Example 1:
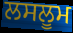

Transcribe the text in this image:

ਲਸਲੂਮ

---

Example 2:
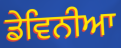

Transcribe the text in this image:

ਡੇਵਿਨੀਆ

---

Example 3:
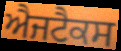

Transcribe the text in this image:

ਐਜਟੈਕਸ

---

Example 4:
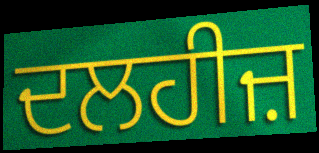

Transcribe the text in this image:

ਦਲਹੀਜ਼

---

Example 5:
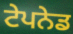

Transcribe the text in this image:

ਟੇਪਨੇਡ